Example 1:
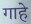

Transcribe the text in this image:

गाहे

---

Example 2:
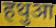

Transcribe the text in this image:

हथुआ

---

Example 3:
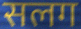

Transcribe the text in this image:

सलग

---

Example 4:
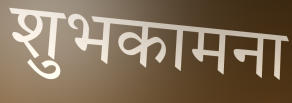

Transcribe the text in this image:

शुभकामना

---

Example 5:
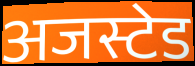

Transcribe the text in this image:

अजस्टेड